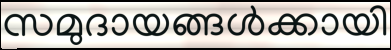
സമുദായങ്ങൾക്കായി